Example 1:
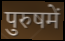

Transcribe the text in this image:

पुरुषमें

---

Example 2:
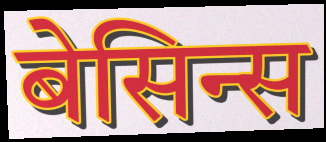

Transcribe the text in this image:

बेसिन्स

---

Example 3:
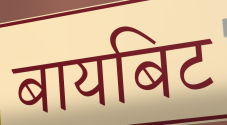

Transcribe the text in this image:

बायबिट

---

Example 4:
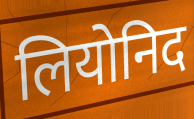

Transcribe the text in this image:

लियोनिद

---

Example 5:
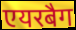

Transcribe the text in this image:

एयरबैग